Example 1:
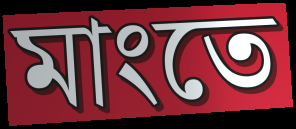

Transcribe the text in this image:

মাংতে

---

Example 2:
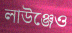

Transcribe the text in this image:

লাউঞ্জেও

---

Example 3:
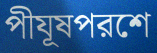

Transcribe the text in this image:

পীযূষপরশে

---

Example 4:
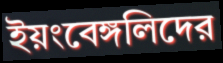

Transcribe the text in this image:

ইয়ংবেঙ্গলিদের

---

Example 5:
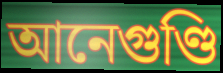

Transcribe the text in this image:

আনেগুণ্ডি